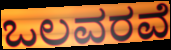
ಒಲವರವೆ